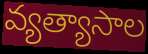
వ్యత్యాసాల